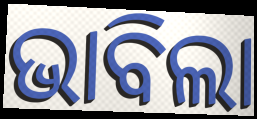
ଭାବିଲା